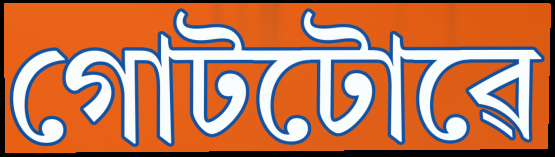
গোটটোৱে